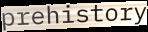
prehistory